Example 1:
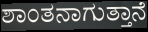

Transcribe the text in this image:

ಶಾಂತನಾಗುತ್ತಾನೆ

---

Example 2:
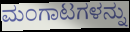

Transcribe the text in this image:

ಮಂಗಾಟಗಳನ್ನು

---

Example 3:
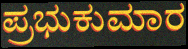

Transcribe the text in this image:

ಪ್ರಭುಕುಮಾರ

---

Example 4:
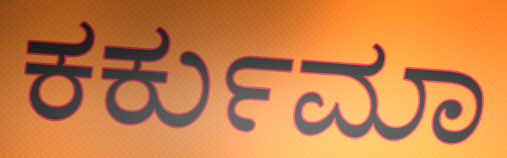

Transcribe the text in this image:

ಕರ್ಕುಮಾ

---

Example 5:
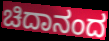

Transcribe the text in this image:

ಚಿದಾನಂದ